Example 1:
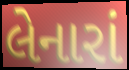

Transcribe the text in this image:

લેનારાં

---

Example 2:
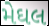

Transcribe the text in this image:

મેઘલ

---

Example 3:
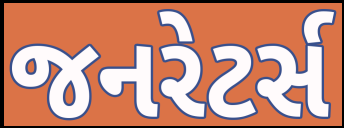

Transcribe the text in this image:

જનરેટર્સ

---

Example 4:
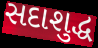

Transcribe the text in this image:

સદાશુદ્ધ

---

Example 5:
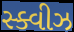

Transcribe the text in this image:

સ્ક્વીઝ